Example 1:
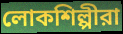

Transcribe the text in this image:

লোকশিল্পীরা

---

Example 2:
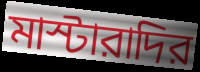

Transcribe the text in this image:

মাস্টারাদির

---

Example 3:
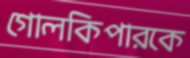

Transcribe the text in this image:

গোলকিপারকে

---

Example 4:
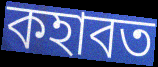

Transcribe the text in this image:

কহাবত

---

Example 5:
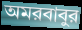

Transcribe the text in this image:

অমরবাবুর